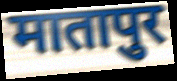
मातापुर